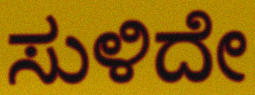
ಸುಳಿದೇ